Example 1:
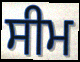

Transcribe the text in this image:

ਸੀਮ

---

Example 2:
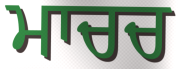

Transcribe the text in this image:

ਮਾਚਚ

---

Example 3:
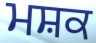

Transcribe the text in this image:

ਮਸ਼ਕ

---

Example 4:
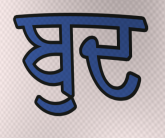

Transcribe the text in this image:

ਬੁਦ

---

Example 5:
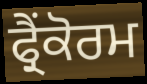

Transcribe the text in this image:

ਫ੍ਰੈਂਕੋਰਮ